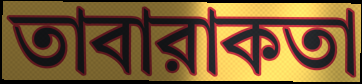
তাবারাকতা